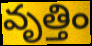
వృత్తిం